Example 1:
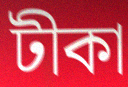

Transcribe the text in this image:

টীকা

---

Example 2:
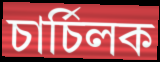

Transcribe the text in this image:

চাৰ্চিলক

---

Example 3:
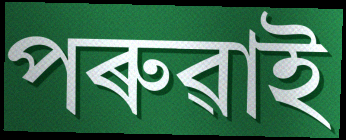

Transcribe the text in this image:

পৰুৱাই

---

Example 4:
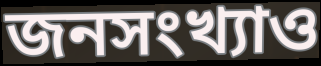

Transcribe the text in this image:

জনসংখ্যাও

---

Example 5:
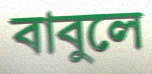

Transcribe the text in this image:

বাবুলে